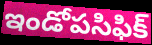
ఇండోపసిఫిక్